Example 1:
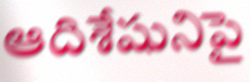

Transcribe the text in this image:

ఆదిశేషునిపై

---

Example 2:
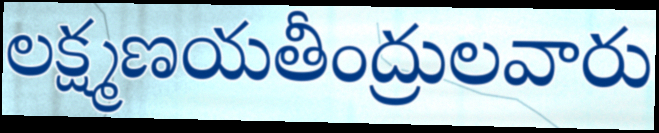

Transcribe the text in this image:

లక్ష్మణయతీంద్రులవారు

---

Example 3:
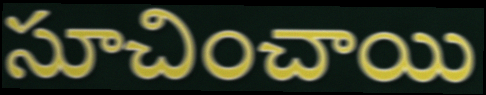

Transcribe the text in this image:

సూచించాయి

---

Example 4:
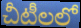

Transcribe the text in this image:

చీటీలలో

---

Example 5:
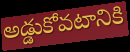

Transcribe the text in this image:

అడ్డుకోవటానికి